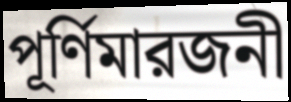
পূর্ণিমারজনী